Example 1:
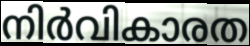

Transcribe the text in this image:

നിർവികാരത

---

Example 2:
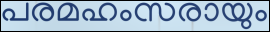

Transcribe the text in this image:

പരമഹംസരായും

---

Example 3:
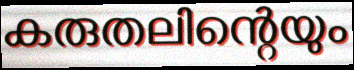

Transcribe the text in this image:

കരുതലിന്റെയും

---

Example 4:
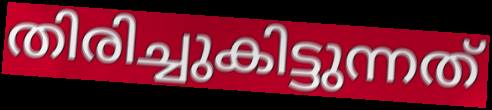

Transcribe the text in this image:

തിരിച്ചുകിട്ടുന്നത്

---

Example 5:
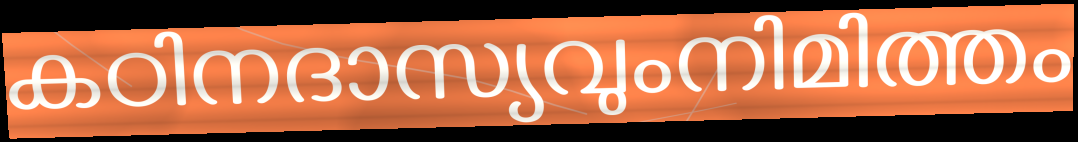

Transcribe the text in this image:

കഠിനദാസ്യവുംനിമിത്തം